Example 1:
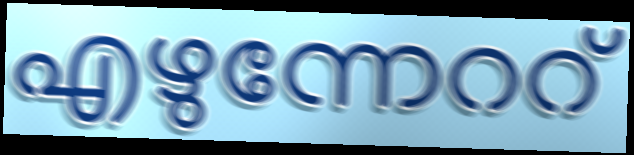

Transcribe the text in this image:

എഴുന്നേററ്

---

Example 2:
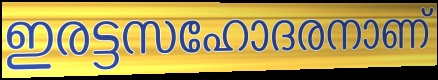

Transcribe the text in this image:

ഇരട്ടസഹോദരനാണ്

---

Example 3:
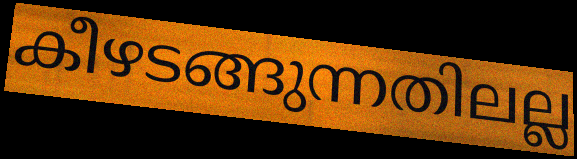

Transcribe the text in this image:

കീഴടങ്ങുന്നതിലല്ല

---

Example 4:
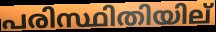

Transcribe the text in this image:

പരിസ്ഥിതിയില്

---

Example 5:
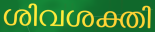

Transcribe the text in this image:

ശിവശക്തി